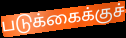
படுக்கைக்குச்